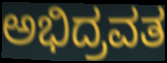
ಅಭಿದ್ರವತ